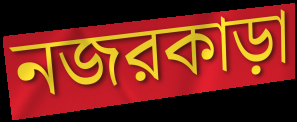
নজরকাড়া